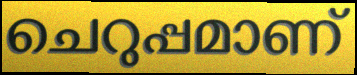
ചെറുപ്പമാണ്